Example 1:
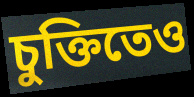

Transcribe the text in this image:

চুক্তিতেও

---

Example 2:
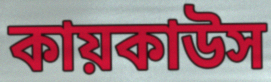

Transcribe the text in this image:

কায়কাউস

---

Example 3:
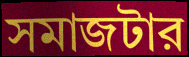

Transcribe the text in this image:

সমাজটার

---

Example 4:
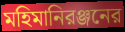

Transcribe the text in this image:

মহিমানিরঞ্জনের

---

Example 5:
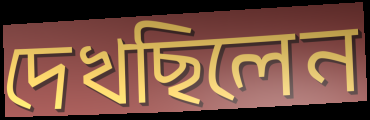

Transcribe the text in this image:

দেখছিলেন